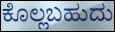
ಕೊಲ್ಲಬಹುದು